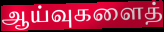
ஆய்வுகளைத்